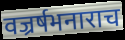
वज्रर्षभनाराच